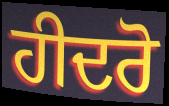
ਹੀਦਰੋ